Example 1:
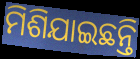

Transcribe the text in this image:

ମିଶିଯାଇଛନ୍ତି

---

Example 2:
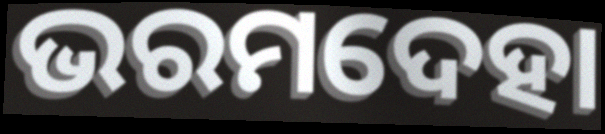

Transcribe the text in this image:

ଭରମଦେହା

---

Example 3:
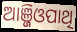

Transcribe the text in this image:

ଆଞ୍ଜିଓପାଥି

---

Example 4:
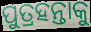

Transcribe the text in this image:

ପୁତ୍ରହନ୍ତାକୁ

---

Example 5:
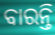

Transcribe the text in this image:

ବାରନ୍ତି